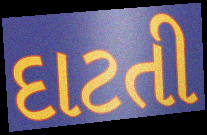
દાટતી